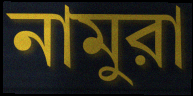
নামুরা